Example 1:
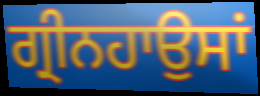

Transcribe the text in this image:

ਗ੍ਰੀਨਹਾਉਸਾਂ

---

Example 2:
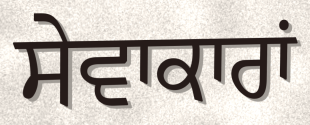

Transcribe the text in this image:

ਸੇਵਾਕਾਰਾਂ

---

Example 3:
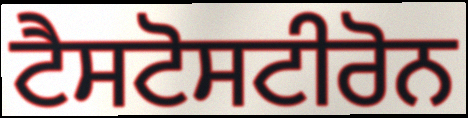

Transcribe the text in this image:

ਟੈਸਟੋਸਟੀਰੋਨ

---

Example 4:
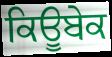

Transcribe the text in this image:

ਕਿਊਬੇਕ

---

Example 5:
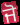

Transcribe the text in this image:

ਜੋ